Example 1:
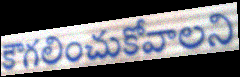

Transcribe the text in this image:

కౌగలించుకోవాలని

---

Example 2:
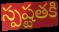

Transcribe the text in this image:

స్పష్టతకి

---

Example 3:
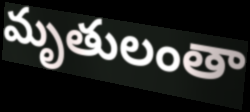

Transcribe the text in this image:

మృతులంతా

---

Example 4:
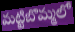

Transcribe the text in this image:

మట్టిబొమ్మలో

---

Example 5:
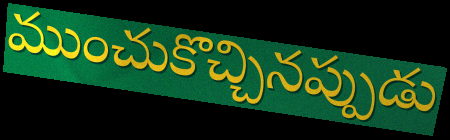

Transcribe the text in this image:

ముంచుకొచ్చినప్పుడు